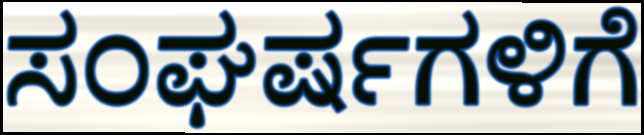
ಸಂಘರ್ಷಗಳಿಗೆ